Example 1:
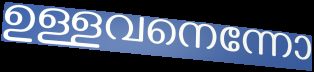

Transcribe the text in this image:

ഉള്ളവനെന്നോ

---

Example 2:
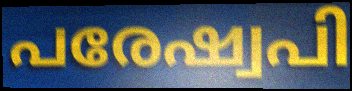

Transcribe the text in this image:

പരേഷ്വപി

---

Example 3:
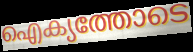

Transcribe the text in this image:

ഐക്യത്തോടെ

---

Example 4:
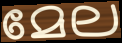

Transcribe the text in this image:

മേല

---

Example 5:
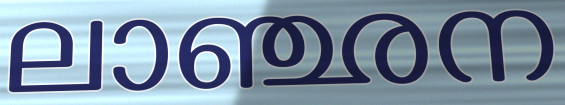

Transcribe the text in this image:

ലാഞ്ഛന